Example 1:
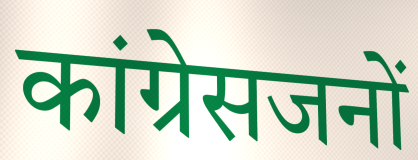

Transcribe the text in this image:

कांग्रेसजनों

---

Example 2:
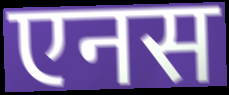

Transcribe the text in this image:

एनस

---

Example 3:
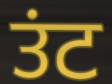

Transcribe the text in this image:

उंट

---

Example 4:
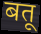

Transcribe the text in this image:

बतू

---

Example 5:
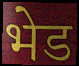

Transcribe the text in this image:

भेड